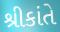
શ્રીકાંતે